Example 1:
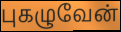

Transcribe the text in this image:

புகழுவேன்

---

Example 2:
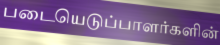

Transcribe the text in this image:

படையெடுப்பாளர்களின்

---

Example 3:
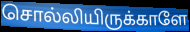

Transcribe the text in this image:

சொல்லியிருக்காளே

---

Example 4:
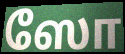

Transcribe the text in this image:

ஸோ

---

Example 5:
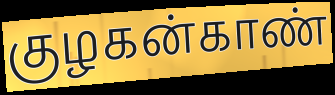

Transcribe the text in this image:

குழகன்காண்